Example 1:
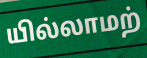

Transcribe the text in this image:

யில்லாமற்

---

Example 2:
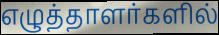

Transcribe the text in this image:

எழுத்தாளர்களில்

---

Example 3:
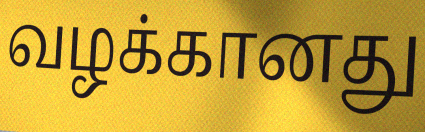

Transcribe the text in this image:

வழக்கானது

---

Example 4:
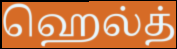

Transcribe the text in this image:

ஹெல்த்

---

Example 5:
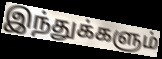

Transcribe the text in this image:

இந்துக்களும்